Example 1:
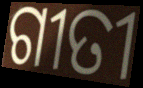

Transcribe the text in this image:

ଗୀତୀ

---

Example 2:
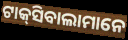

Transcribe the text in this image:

ଟାକ୍‌ସିବାଲାମାନେ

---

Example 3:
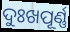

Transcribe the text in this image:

ଦୁଃଖପୂର୍ଣ୍ଣ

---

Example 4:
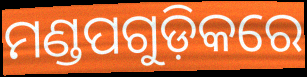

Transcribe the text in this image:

ମଣ୍ଡପଗୁଡ଼ିକରେ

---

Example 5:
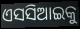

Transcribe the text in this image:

ଏସସିଆଇକୁ